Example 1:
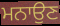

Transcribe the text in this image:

ਮਨਾਉਣ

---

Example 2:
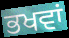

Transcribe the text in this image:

ਭਖਵਾਂ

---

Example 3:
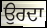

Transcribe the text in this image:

ਉਰਦਾ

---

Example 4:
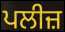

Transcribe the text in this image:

ਪਲੀਜ਼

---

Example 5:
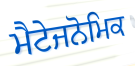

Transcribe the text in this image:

ਮੈਟੇਜਨੋਮਿਕ